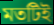
মতটিই